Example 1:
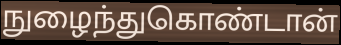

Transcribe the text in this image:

நுழைந்துகொண்டான்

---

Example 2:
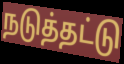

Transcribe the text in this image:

நடுத்தட்டு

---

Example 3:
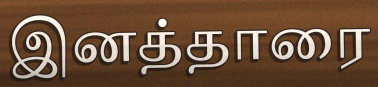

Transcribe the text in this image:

இனத்தாரை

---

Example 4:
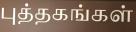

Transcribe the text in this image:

புத்தகங்கள்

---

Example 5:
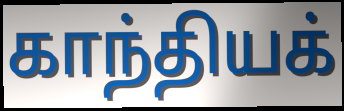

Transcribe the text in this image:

காந்தியக்